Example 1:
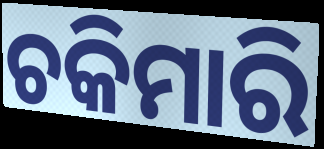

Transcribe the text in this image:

ଚକିମାରି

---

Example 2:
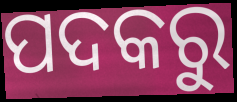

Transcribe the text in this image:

ପଦକରୁ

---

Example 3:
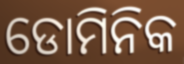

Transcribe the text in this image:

ଡୋମିନିକ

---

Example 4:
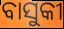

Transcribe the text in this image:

ବାସୁକୀ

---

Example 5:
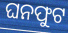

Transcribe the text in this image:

ଘନଫୁଟ